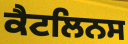
ਕੈਟਲਿਨਸ